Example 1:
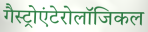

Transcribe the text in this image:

गैस्ट्रोएंटेरोलॉजिकल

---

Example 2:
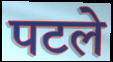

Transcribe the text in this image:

पटले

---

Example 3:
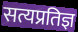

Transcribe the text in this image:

सत्यप्रतिज्ञ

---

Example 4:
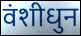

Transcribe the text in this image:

वंशीधुन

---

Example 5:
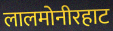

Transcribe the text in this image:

लालमोनीरहाट